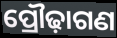
ପ୍ରୌଢ଼ାଗଣ